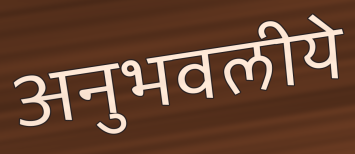
अनुभवलीये